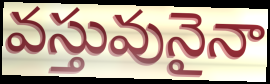
వస్తువునైనా